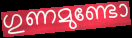
ഗുണമുണ്ടോ